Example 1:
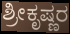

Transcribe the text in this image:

ಶ್ರೀಕೃಷ್ಣರ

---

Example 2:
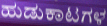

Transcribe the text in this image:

ಹುಡುಕಾಟಗಳ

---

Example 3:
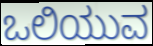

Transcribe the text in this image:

ಒಲಿಯುವ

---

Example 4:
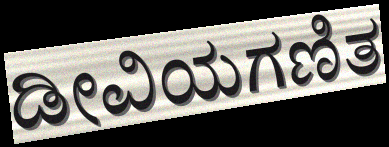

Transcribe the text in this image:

ಡೀವಿಯಗಣಿತ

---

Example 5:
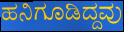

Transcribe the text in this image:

ಹನಿಗೂಡಿದ್ದವು